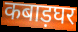
कबाड़घर